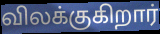
விலக்குகிறார்